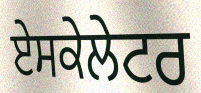
ਏਸਕੇਲੇਟਰ